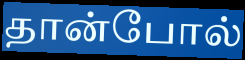
தான்போல்